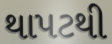
થાપટથી